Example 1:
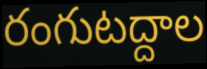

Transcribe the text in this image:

రంగుటద్దాల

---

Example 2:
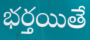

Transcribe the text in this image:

భర్తయితే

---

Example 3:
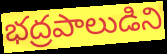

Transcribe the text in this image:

భద్రపాలుడిని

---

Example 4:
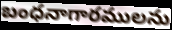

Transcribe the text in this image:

బంధనాగారములను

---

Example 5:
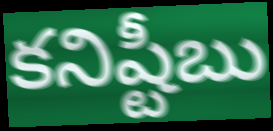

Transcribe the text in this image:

కనిష్టీబు